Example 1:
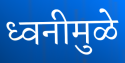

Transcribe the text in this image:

ध्वनीमुळे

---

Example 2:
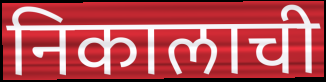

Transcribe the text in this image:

निकालाची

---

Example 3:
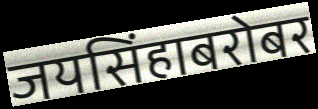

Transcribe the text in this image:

जयसिंहाबरोबर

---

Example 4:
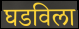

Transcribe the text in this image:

घडविला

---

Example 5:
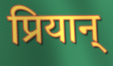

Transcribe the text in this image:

प्रियान्